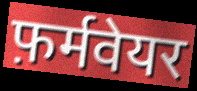
फ़र्मवेयर